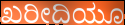
ಖರೀದಿಯೂ